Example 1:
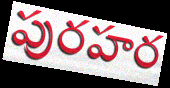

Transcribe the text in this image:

పురహర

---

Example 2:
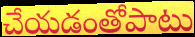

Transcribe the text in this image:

చేయడంతోపాటు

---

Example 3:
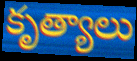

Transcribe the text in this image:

కృత్యాలు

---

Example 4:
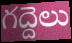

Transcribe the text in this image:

గద్దెలు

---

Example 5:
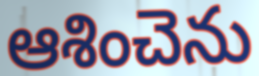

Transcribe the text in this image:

ఆశించెను